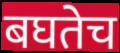
बघतेच